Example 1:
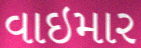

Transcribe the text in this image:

વાઇમાર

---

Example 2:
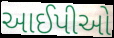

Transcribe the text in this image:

આઈપીઓ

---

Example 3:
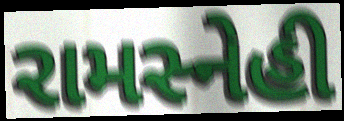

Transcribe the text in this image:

રામસ્નેહી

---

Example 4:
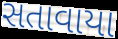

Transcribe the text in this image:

સતાવાયા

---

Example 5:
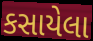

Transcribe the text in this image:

કસાયેલા